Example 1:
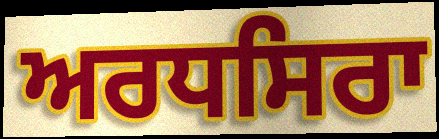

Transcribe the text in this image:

ਅਰਧਸਿਰਾ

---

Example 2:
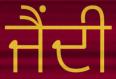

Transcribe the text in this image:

ਜੈਂਦੀ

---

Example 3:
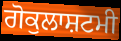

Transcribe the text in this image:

ਗੋਕੁਲਾਸ਼ਟਮੀ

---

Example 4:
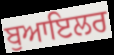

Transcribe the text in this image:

ਬੁਆਇਲਰ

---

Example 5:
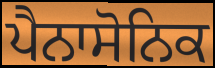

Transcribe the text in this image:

ਪੈਨਾਸੋਨਿਕ